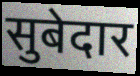
सुबेदार